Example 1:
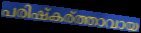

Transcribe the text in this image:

പരിഷ്കര്ത്താവായ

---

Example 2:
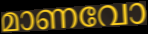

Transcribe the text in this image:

മാണവോ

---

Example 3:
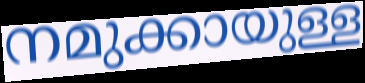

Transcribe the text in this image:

നമുക്കായുള്ള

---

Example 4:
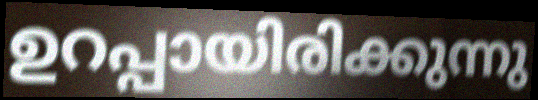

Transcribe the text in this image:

ഉറപ്പായിരിക്കുന്നു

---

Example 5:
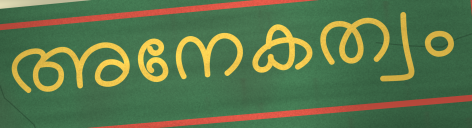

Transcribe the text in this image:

അനേകത്വം